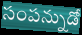
సంపన్నుడో